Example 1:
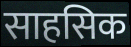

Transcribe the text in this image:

साहसिक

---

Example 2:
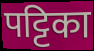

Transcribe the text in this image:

पट्टिका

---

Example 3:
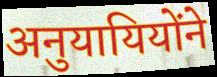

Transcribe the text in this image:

अनुयायियोंने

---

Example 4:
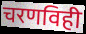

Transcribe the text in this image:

चरणविही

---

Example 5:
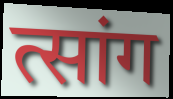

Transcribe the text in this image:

त्सांग